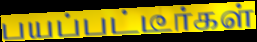
பயப்பட்டீர்கள்